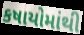
કષાયોમાંથી